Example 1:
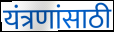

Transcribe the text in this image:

यंत्रणांसाठी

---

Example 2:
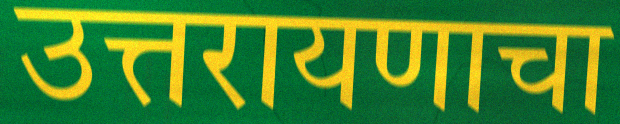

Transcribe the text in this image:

उत्तरायणाचा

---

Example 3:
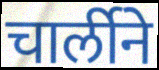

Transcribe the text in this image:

चार्लीने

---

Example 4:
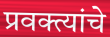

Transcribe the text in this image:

प्रवक्त्यांचे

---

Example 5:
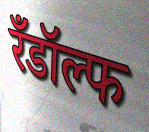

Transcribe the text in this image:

रँडॉल्फ